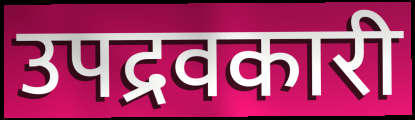
उपद्रवकारी